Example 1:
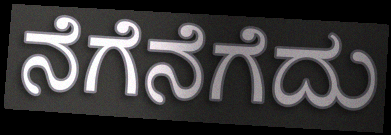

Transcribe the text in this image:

ನೆಗೆನೆಗೆದು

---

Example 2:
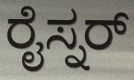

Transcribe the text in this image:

ರೈಸ್ನರ್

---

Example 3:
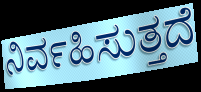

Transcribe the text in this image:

ನಿರ್ವಹಿಸುತ್ತದೆ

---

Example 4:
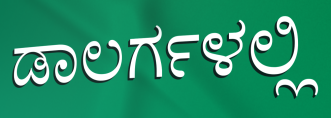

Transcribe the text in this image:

ಡಾಲರ್ಗಳಲ್ಲಿ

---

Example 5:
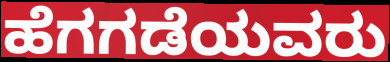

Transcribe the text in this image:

ಹೆಗಗಡೆಯವರು